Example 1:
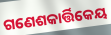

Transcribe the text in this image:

ଗଣେଶକାର୍ତ୍ତିକେୟ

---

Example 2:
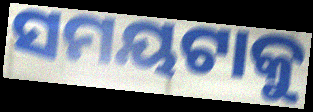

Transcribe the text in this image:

ସମୟଟାକୁ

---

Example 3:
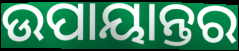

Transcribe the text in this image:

ଉପାୟାନ୍ତର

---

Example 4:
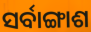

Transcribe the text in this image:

ସର୍ବାଙ୍ଗାଶ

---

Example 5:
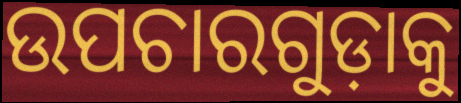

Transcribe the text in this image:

ଉପଚାରଗୁଡ଼ାକୁ